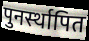
पुनर्स्थापित